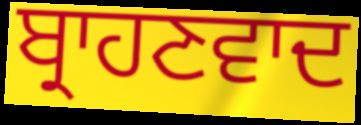
ਬ੍ਰਾਹਣਵਾਦ